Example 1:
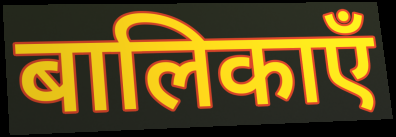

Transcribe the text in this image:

बालिकाएँ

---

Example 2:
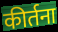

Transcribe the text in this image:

कीर्तना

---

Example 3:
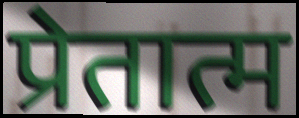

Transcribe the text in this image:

प्रेतात्म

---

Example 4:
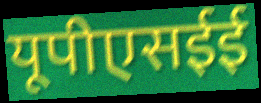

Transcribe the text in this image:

यूपीएसईई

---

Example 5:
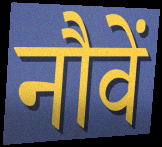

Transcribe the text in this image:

नौवें